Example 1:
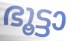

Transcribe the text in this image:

ഭൂട്ടാ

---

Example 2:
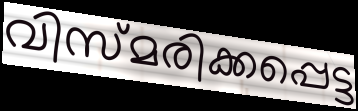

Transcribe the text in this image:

വിസ്മരിക്കപ്പെട്ട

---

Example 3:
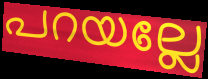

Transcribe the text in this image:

പറയല്ലേ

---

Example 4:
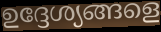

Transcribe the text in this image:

ഉദ്ദേശ്യങ്ങളെ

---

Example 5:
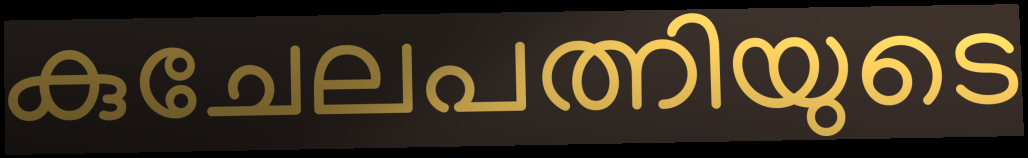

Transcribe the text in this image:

കുചേലപത്നിയുടെ